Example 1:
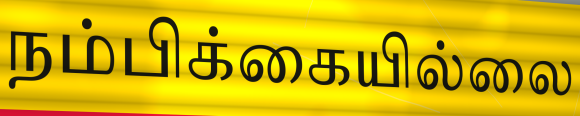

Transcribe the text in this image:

நம்பிக்கையில்லை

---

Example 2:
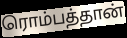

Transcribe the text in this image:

ரொம்பத்தான்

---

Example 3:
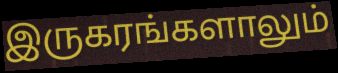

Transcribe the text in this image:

இருகரங்களாலும்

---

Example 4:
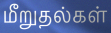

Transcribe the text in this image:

மீறுதல்கள்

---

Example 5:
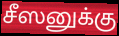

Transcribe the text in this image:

சீஸனுக்கு